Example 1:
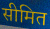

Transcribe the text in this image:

सीमित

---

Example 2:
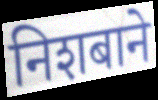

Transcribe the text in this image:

निशबाने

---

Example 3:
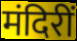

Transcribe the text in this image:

मंदिरीं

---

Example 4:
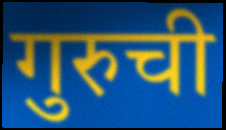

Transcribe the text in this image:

गुरुची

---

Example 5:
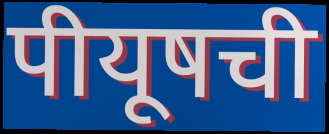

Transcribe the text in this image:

पीयूषची